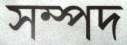
সম্পদ